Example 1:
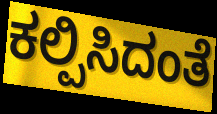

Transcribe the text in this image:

ಕಲ್ಪಿಸಿದಂತೆ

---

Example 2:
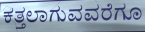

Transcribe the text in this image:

ಕತ್ತಲಾಗುವವರೆಗೂ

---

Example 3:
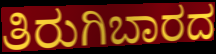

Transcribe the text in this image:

ತಿರುಗಿಬಾರದ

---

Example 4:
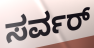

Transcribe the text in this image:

ಸರ್ವರ್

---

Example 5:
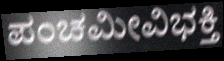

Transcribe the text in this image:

ಪಂಚಮೀವಿಭಕ್ತಿ